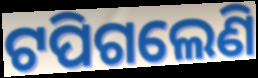
ଟପିଗଲେଣି